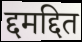
द्दमद्दित